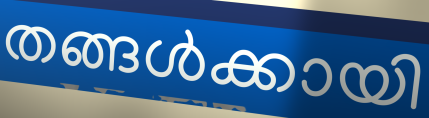
തങ്ങൾക്കായി